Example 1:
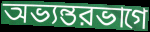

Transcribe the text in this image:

অভ্যন্তরভাগে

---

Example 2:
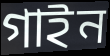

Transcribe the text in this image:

গাইন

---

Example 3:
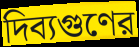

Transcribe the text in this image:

দিব্যগুণের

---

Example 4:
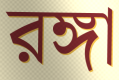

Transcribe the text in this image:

রঙ্গা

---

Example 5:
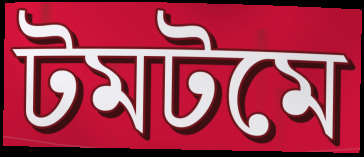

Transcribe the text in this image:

টমটমে